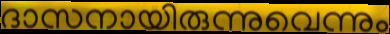
ദാസനായിരുന്നുവെന്നും